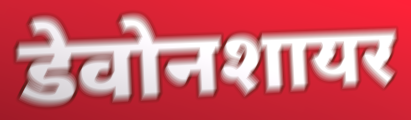
डेवोनशायर